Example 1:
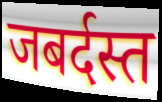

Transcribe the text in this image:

जबर्दस्त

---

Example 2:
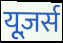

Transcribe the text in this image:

यूज़र्स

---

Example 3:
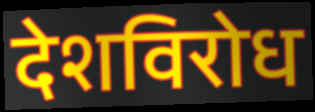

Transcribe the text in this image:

देशविरोध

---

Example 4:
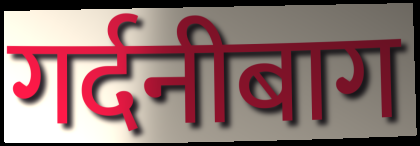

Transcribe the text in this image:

गर्दनीबाग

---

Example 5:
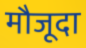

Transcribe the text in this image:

मौजूदा